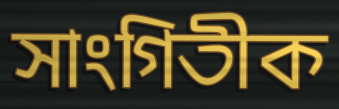
সাংগিতীক